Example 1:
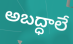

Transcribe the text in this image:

అబద్ధాలే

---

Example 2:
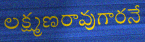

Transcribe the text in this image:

లక్ష్మణరావుగారనే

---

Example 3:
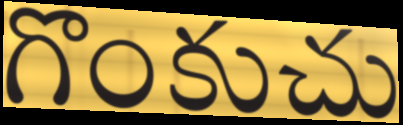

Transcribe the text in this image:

గొంకుచు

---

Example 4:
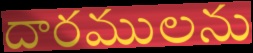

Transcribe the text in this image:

దారములను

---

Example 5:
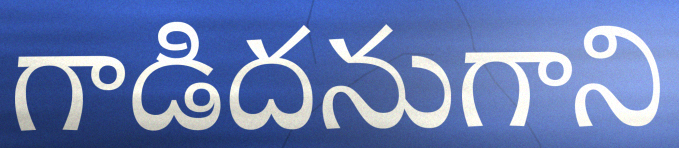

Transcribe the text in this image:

గాడిదనుగాని